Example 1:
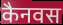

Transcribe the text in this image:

कैनवस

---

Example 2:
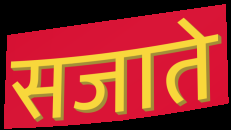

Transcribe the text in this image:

सजाते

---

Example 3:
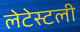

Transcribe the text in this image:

लेटेस्टली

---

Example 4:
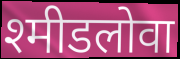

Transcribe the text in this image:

श्मीडलोवा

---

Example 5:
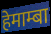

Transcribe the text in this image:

हेमाम्बा